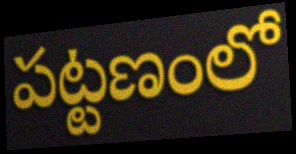
పట్టణంలో